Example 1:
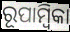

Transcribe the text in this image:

ରୂପାମ୍ବିକା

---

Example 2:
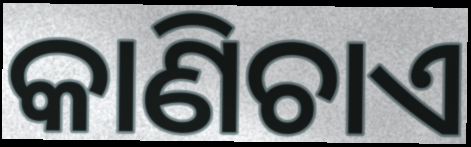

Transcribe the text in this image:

କାଣିଚାଏ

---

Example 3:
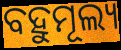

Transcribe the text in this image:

ବହୁମୂଲ୍ୟ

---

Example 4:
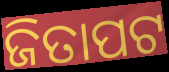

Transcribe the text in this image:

ଜିତାପଟ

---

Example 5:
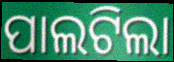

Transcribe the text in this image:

ପାଲଟିଲା